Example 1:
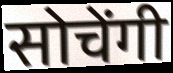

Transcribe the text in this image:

सोचेंगी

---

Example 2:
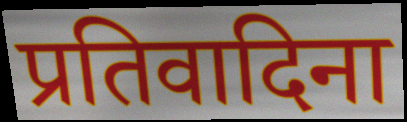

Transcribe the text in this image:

प्रतिवादिना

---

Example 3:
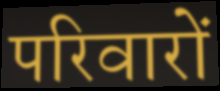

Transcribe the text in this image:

परिवारों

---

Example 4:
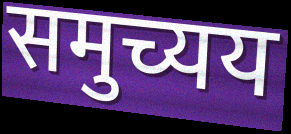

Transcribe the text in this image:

समुच्यय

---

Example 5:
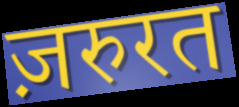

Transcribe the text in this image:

ज़रुरत